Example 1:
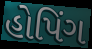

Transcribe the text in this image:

હોપિંગ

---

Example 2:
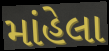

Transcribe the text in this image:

માંહેલા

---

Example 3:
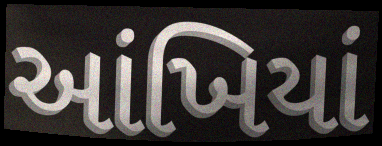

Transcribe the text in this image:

આંખિયાં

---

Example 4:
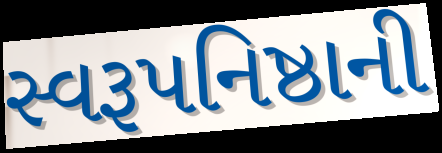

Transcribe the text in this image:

સ્વરૂપનિષ્ઠાની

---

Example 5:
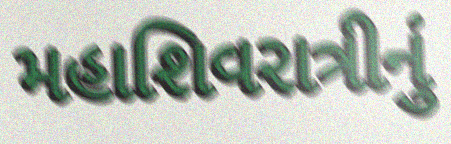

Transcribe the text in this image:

મહાશિવરાત્રીનું